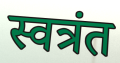
स्वत्रंत